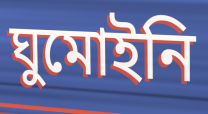
ঘুমোইনি